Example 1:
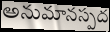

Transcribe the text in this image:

అనుమానస్పద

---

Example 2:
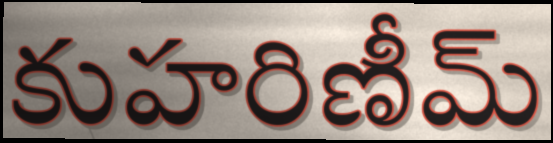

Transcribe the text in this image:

కుహరిణీమ్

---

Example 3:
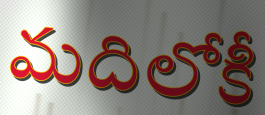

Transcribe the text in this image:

మదిలోకీ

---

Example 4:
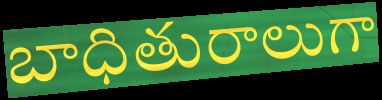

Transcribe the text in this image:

బాధితురాలుగా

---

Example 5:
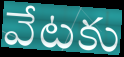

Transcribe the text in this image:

వేటకు